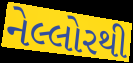
નેલ્લોરથી